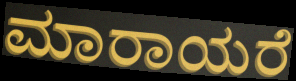
ಮಾರಾಯರೆ